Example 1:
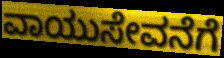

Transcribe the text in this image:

ವಾಯುಸೇವನೆಗೆ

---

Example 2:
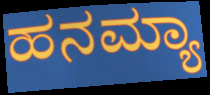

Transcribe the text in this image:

ಹನಮ್ಯಾ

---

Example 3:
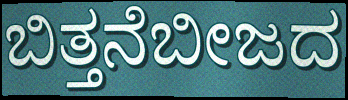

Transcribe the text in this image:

ಬಿತ್ತನೆಬೀಜದ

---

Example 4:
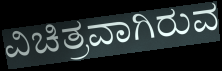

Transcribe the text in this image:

ವಿಚಿತ್ರವಾಗಿರುವ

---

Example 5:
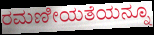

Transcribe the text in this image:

ರಮಣೀಯತೆಯನ್ನೂ